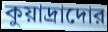
কুয়াদ্রাদোর